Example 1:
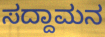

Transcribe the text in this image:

ಸದ್ದಾಮನ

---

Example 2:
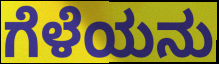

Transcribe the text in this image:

ಗೆಳೆಯನು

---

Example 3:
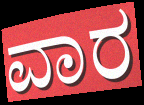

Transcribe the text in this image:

ವಾರ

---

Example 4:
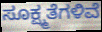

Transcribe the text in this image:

ಸೂಕ್ಷ್ಮತೆಗಳಿವೆ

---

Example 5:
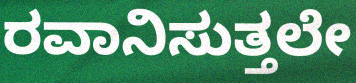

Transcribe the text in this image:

ರವಾನಿಸುತ್ತಲೇ